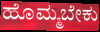
ಹೊಮ್ಮಬೇಕು